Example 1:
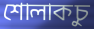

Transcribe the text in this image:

শোলাকচু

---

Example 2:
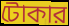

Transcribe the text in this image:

টোকার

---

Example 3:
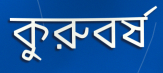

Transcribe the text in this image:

কুরুবর্ষ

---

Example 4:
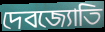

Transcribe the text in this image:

দেবজ্যোতি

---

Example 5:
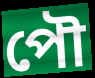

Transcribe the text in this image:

পৌ